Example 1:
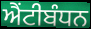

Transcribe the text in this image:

ਐਂਟੀਬੰਧਨ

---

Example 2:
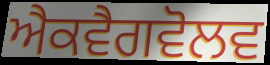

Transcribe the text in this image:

ਐਕਵੈਗਵੋਲਵ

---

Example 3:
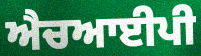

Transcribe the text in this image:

ਐਚਆਈਪੀ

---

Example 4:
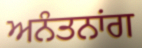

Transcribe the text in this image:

ਅਨੰਤਨਾਂਗ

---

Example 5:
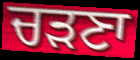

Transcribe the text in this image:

ਚੜਣਾ